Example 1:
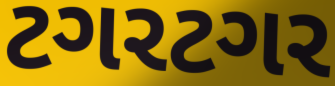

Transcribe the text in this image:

ટગરટગર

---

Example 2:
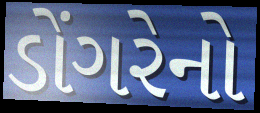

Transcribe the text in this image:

ડોંગરેનો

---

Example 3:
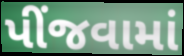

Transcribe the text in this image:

પીંજવામાં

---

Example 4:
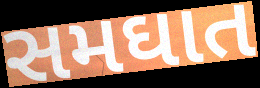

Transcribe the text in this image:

સમઘાત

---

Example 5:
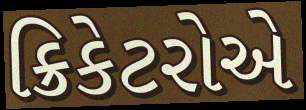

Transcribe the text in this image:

ક્રિકેટરોએ